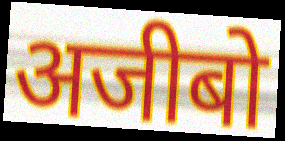
अजीबो